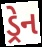
ડ્રેન